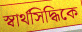
স্বার্থসিদ্ধিকে